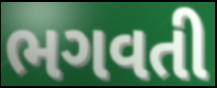
ભગવતી